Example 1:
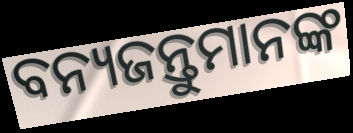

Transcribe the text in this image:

ବନ୍ୟଜନ୍ତୁମାନଙ୍କ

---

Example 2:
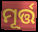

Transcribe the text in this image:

ମୂର୍ତ୍ତ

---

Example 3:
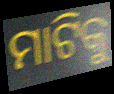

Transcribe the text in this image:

ମାଟିକୁ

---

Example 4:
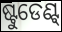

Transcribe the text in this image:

ଷ୍ଟୁଡେଣ୍ଟ୍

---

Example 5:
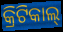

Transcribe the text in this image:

କ୍ରିଟିକାଲ୍